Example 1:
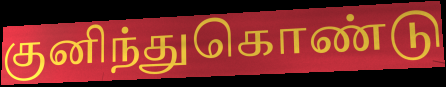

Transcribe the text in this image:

குனிந்துகொண்டு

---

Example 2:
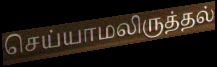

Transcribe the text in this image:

செய்யாமலிருத்தல்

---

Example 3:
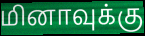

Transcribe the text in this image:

மினாவுக்கு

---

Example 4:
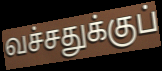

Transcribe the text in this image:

வச்சதுக்குப்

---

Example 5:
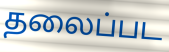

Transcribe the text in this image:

தலைப்பட